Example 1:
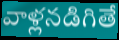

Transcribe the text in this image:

వాళ్లనడిగితే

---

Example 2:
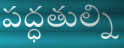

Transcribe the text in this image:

పద్ధతుల్ని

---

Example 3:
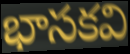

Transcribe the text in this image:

భాసకవి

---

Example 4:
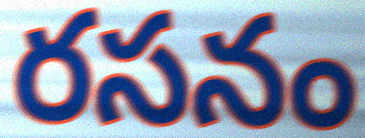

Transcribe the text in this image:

రసనం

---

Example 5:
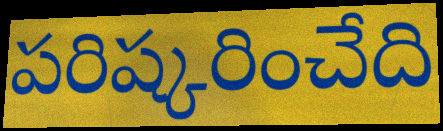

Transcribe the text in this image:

పరిష్కరించేది